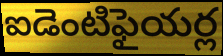
ఐడెంటిఫైయర్ల